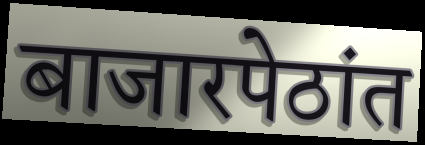
बाजारपेठांत